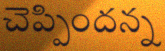
చెప్పిందన్న